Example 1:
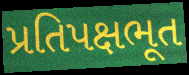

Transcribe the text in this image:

પ્રતિપક્ષભૂત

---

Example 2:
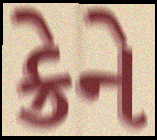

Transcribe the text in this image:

ક્રેને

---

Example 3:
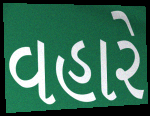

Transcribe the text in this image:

વહારે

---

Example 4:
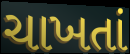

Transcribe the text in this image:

ચાખતાં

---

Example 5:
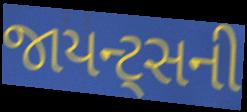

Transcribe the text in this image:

જાયન્ટ્સની